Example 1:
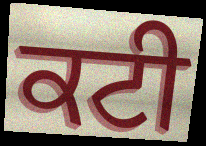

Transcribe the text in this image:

ਕਟੀ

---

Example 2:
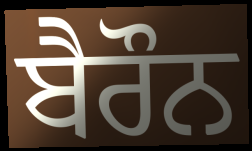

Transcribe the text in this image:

ਬੈਰੌਨ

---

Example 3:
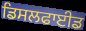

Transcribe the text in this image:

ਡਿਸਲਫਾਈਡ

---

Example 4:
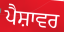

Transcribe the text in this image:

ਪੈਸ਼ਾਵਰ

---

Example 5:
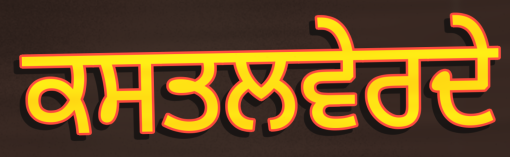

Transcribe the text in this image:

ਕਸਤਲਵੇਰਦੇ